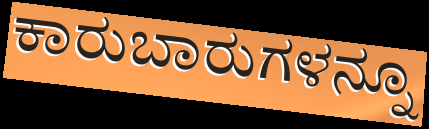
ಕಾರುಬಾರುಗಳನ್ನೂ